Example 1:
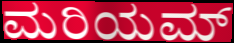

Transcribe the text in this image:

ಮರಿಯಮ್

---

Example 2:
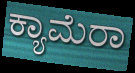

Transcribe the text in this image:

ಕ್ಯಾಮೆರಾ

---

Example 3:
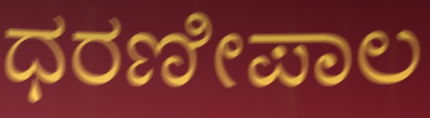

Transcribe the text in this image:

ಧರಣೀಪಾಲ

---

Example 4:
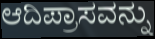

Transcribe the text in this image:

ಆದಿಪ್ರಾಸವನ್ನು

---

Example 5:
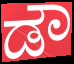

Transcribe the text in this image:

ಡೌ